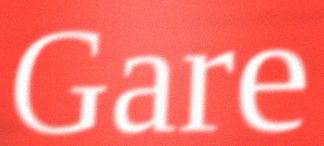
Gare